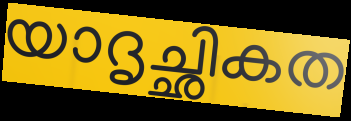
യാദൃച്ഛികത